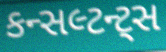
કન્સલ્ટન્ટ્સ